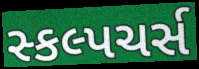
સ્કલ્પચર્સ